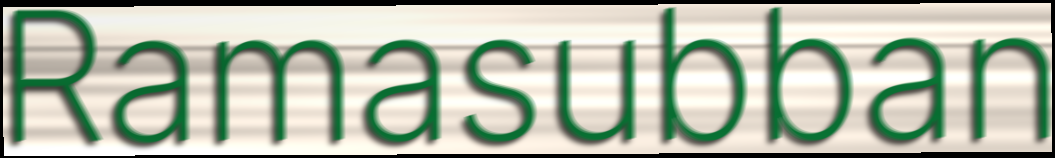
Ramasubban